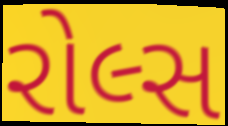
રોલ્સ